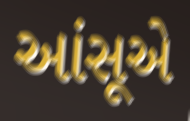
આંસૂએ